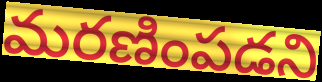
మరణింపడని